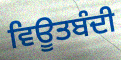
ਵਿਊਤਬੰਦੀ